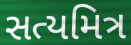
સત્યમિત્ર